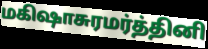
மகிஷாசுரமர்த்தினி